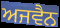
ਅਜਵੈਨ